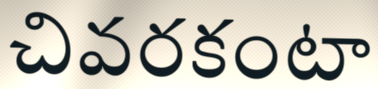
చివరకంటా